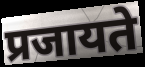
प्रजायते